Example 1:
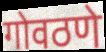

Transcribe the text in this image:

गोवठणे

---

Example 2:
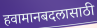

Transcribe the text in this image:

हवामानबदलासाठी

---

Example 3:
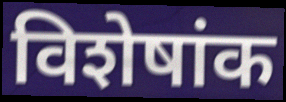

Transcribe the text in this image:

विशेषांक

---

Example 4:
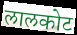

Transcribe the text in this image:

लालकोट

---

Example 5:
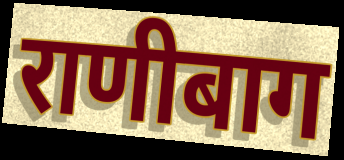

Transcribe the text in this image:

राणीबाग